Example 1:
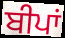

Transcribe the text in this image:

ਬੀਪਾਂ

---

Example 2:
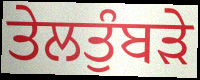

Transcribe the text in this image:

ਤੇਲਤੁੰਬੜੇ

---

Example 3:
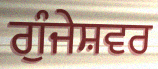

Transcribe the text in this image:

ਗੁੰਜੇਸ਼ਵਰ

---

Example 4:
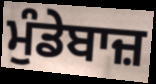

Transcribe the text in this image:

ਮੁੰਡੇਬਾਜ਼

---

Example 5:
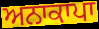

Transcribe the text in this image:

ਅਨਾਕਾਪਾ